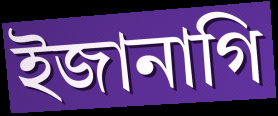
ইজানাগি